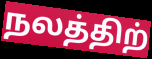
நலத்திற்